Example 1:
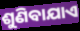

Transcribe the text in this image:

ଶୁଣିବାଯାଏ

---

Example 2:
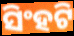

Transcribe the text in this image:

ସିଂହଟି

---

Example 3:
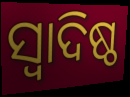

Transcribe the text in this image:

ସ୍ୱାଦିଷ୍ଠ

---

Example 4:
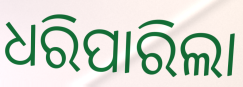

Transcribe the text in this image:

ଧରିପାରିଲା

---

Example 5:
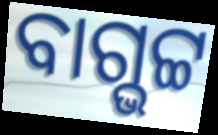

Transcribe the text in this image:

ବାଗ୍ଭଟ୍ଟ